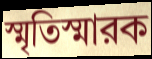
স্মৃতিস্মারক